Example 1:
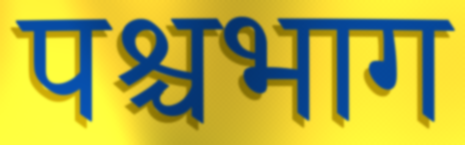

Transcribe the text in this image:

पश्चभाग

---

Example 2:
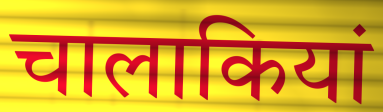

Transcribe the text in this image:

चालाकियां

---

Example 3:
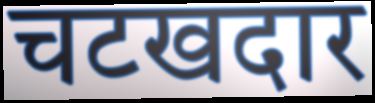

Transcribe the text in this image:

चटखदार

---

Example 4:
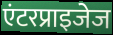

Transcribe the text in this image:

एंटरप्राइजेज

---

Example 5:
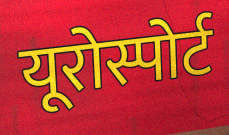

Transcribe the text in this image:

यूरोस्पोर्ट